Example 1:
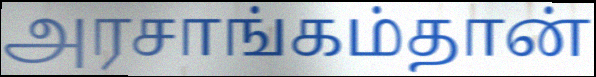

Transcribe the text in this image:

அரசாங்கம்தான்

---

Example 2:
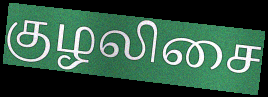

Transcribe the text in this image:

குழலிசை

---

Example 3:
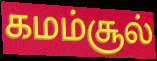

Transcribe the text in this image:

கமம்சூல்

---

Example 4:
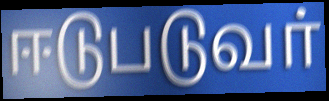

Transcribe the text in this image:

ஈடுபடுவர்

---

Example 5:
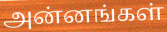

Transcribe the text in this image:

அன்னங்கள்